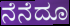
ನೆನೆದೂ